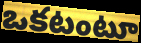
ఒకటంటూ